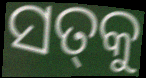
ସତ୍‌କୁ